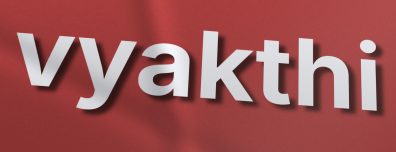
vyakthi